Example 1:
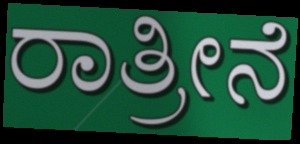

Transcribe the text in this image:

ರಾತ್ರೀನೆ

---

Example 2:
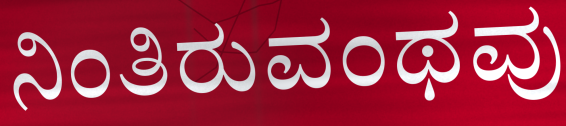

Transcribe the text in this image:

ನಿಂತಿರುವಂಥವು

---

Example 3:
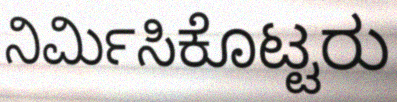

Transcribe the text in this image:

ನಿರ್ಮಿಸಿಕೊಟ್ಟರು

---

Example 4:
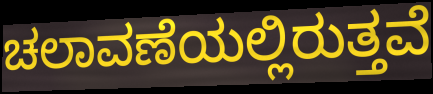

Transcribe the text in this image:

ಚಲಾವಣೆಯಲ್ಲಿರುತ್ತವೆ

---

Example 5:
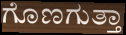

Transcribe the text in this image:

ಗೊಣಗುತ್ತಾ